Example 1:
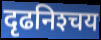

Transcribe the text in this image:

दृढनिश्‍चय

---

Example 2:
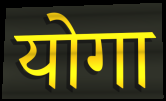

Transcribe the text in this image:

योगा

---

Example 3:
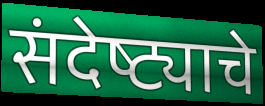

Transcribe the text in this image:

संदेष्ट्याचे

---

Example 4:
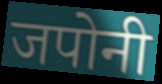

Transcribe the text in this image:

जपोनी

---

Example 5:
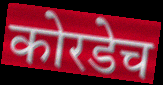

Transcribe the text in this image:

कोरडेच